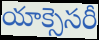
యాక్సెసరీ